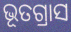
ଭୂତଗ୍ରାସ